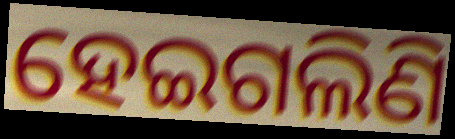
ହେଇଗଲିଣି